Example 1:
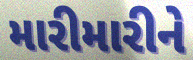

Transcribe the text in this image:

મારીમારીને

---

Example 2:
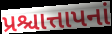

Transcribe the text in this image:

પ્રશ્ચાત્તાપનાં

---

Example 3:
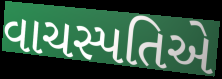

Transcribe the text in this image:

વાચસ્પતિએ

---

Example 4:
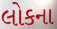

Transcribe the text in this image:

લોકના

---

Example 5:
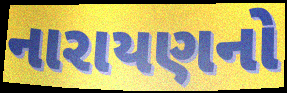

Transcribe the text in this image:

નારાયણનો